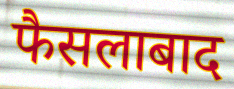
फैसलाबाद